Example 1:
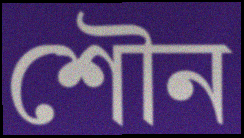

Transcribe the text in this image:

শৌন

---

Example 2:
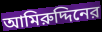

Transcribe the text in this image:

আমিরুদ্দিনের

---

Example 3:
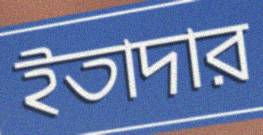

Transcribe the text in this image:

ইতাদার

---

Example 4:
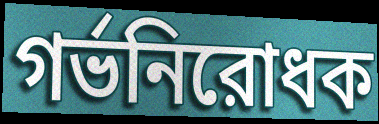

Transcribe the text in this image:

গর্ভনিরোধক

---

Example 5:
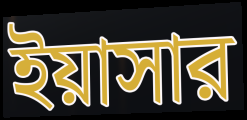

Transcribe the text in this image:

ইয়াসার